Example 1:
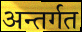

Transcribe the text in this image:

अन्‍तर्गत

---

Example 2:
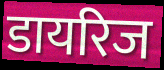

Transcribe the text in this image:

डायरिज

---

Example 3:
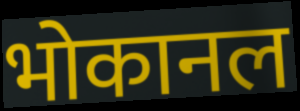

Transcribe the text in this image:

भोकानल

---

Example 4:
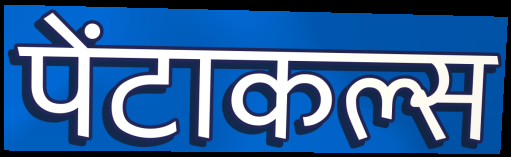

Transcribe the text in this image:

पेंटाकल्स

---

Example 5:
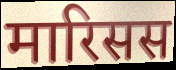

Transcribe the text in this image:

मारिसस